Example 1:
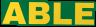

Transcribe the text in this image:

ABLE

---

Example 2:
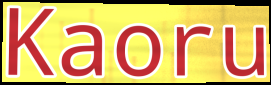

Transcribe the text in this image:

Kaoru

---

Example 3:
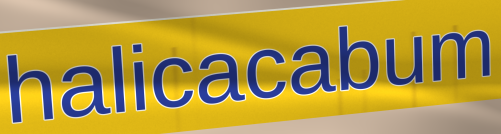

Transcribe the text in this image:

halicacabum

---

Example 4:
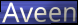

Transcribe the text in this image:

Aveen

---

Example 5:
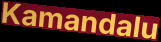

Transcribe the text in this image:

Kamandalu